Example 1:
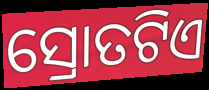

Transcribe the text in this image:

ସ୍ରୋତଟିଏ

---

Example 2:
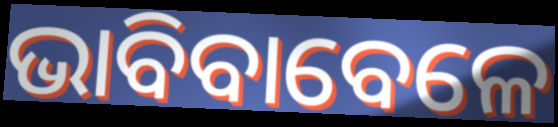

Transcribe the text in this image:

ଭାବିବାବେଳେ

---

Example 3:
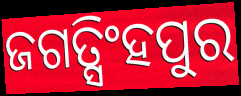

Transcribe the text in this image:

ଜଗତ୍ସିଂହପୁର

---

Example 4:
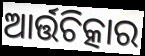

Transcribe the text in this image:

ଆର୍ତ୍ତଚିତ୍କାର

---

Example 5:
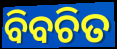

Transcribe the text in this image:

ବିବଚିତ